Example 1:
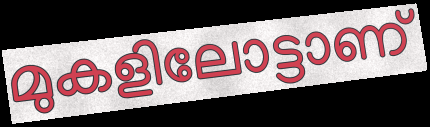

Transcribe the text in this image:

മുകളിലോട്ടാണ്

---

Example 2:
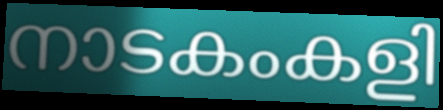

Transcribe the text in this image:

നാടകംകളി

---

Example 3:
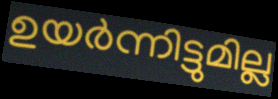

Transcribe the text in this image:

ഉയർന്നിട്ടുമില്ല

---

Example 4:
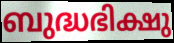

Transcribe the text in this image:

ബുദ്ധഭിക്ഷു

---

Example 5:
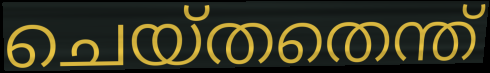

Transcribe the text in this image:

ചെയ്തതെന്ത്